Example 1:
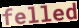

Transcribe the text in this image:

felled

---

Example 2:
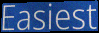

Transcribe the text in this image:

Easiest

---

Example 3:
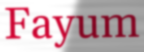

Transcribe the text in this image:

Fayum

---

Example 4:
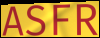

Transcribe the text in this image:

ASFR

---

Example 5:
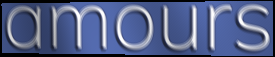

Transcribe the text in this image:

amours